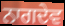
ਨਾਗਦੇਵ